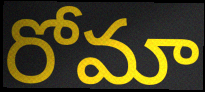
రోమా